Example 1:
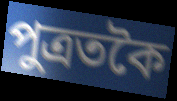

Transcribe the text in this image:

পুত্ৰতকৈ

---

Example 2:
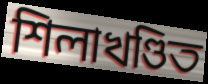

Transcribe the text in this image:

শিলাখণ্ডিত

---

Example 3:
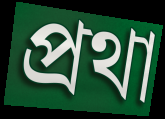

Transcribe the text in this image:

প্ৰথা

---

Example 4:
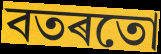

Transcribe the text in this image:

বতৰতো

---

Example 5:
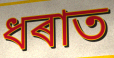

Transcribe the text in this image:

ধৰাত